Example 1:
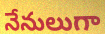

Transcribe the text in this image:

నేనులుగా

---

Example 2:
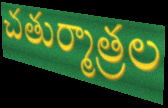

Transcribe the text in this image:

చతుర్మాత్రల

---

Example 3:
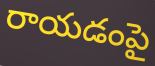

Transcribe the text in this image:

రాయడంపై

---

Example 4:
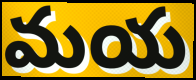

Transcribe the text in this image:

మయ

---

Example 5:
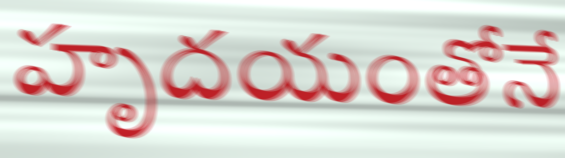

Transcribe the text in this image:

హృదయంతోనే